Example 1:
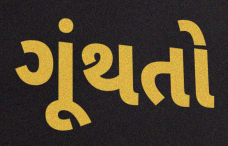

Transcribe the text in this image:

ગૂંથતો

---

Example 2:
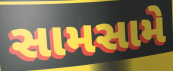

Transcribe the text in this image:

સામસામે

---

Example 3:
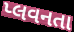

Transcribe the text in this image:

પ્લવનતા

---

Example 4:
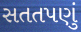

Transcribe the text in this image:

સતતપણું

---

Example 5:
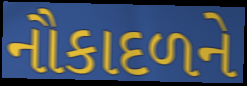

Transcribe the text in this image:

નૌકાદળને